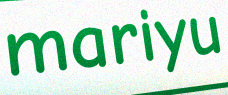
mariyu